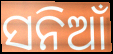
ସନିଆଁ